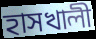
হাসখালী